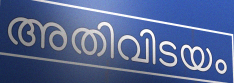
അതിവിടയം